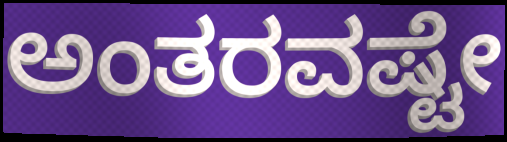
ಅಂತರವಷ್ಟೇ